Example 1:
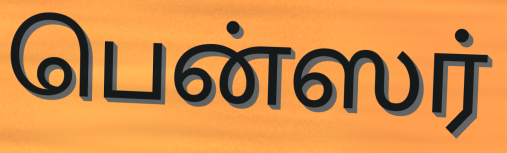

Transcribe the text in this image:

பென்ஸர்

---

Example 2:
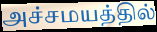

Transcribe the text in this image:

அச்சமயத்தில்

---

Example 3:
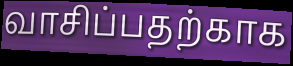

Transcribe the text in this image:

வாசிப்பதற்காக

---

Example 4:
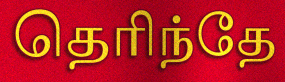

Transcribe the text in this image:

தெரிந்தே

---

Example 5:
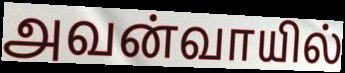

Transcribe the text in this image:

அவன்வாயில்